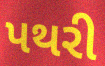
પથરી